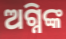
ଅଗ୍ନିଙ୍କ